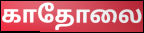
காதோலை